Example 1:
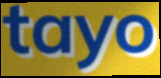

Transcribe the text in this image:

tayo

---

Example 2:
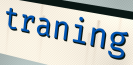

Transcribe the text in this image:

traning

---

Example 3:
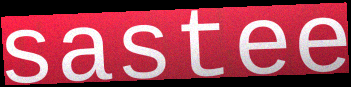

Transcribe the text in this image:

sastee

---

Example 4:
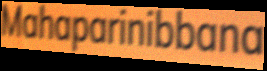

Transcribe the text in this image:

Mahaparinibbana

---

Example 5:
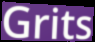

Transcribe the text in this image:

Grits